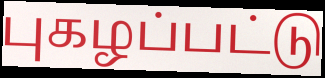
புகழப்பட்டு